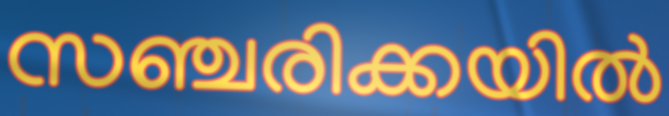
സഞ്ചരിക്കയിൽ